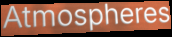
Atmospheres